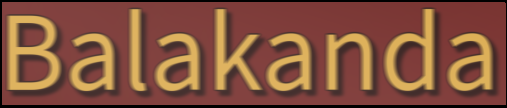
Balakanda